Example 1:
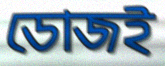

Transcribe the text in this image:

ডোজই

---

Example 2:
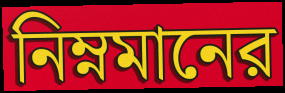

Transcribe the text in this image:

নিম্নমানের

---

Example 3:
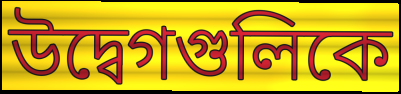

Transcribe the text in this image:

উদ্বেগগুলিকে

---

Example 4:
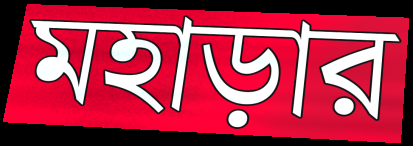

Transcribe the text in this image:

মহাড়ার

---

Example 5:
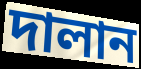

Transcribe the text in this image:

দালান